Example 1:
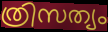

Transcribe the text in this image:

ത്രിസത്യം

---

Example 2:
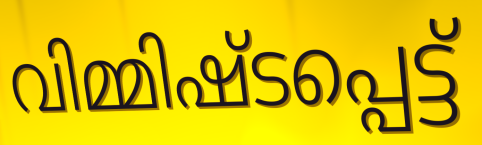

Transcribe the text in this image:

വിമ്മിഷ്ടപ്പെട്ട്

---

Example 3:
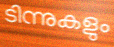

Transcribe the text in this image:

ടിന്നുകളും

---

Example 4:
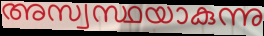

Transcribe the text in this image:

അസ്വസ്ഥയാകുന്നു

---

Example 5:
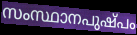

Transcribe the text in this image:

സംസ്ഥാനപുഷ്പം